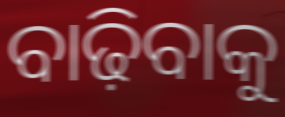
ବାଢ଼ିବାକୁ